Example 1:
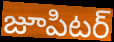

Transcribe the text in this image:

జూపిటర్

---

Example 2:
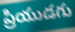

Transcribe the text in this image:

ప్రియుడగు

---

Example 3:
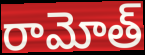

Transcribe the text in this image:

రామోత్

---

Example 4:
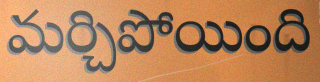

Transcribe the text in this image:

మర్చిపోయింది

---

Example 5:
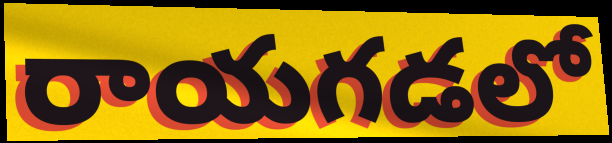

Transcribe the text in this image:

రాయగడలో